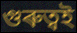
গুৰুত্বই